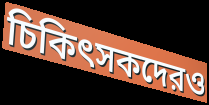
চিকিৎসকদেরও